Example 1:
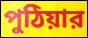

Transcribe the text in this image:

পুঠিয়ার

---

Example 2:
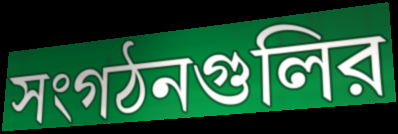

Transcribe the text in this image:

সংগঠনগুলির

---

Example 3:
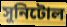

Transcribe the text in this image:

সুনিটোল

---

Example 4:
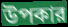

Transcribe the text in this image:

উপকার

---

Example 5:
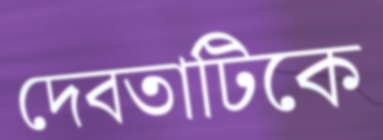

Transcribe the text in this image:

দেবতাটিকে